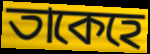
তাকেহে